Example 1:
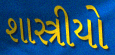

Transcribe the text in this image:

શાસ્ત્રીયો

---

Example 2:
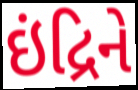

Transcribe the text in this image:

ઇંદ્રિને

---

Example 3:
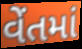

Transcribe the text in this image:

વેંતમાં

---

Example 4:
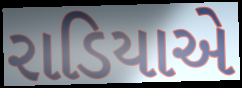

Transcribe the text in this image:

રાડિયાએ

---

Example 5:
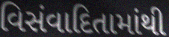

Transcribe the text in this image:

વિસંવાદિતામાંથી